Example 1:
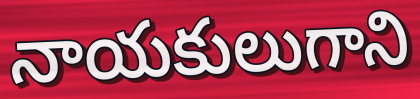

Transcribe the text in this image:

నాయకులుగాని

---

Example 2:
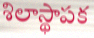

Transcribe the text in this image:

శిలాస్థాపక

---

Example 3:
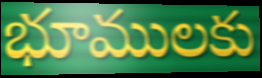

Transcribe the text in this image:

భూములకు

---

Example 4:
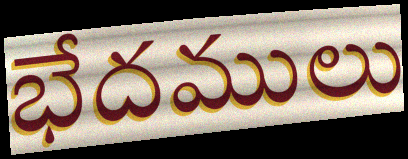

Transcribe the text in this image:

భేదములు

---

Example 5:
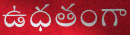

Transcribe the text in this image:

ఉధతంగా